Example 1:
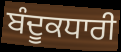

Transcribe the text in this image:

ਬੰਦੂਕਧਾਰੀ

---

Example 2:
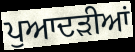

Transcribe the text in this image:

ਪੁਆਦੜੀਆਂ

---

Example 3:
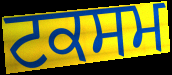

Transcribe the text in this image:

ਟਕਸਮ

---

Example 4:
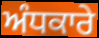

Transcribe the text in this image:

ਅੰਧਕਾਰੇ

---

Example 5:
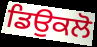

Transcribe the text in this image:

ਡਿਉਕਲੋ